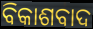
ବିକାଶବାଦ